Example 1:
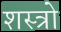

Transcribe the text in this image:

शस्त्रो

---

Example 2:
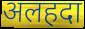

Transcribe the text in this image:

अलहदा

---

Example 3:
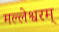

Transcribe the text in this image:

मल्लेश्वरम्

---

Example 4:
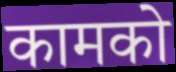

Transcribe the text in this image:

कामको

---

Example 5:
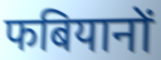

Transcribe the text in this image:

फबियानों